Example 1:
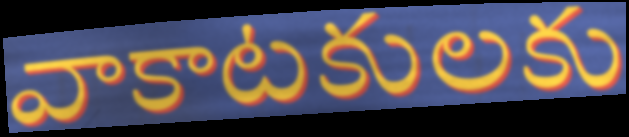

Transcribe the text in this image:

వాకాటకులకు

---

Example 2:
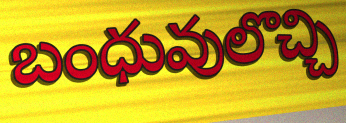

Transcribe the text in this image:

బంధువులొచ్చి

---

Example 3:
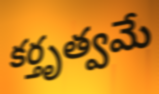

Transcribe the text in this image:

కర్తృత్వమే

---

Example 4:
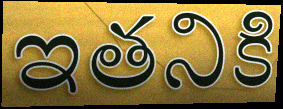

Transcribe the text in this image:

ఇతనికి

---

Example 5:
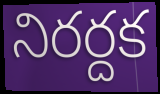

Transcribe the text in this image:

నిరర్దక